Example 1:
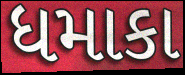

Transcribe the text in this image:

ધમાકા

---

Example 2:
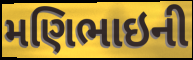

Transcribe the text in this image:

મણિભાઇની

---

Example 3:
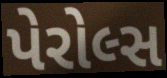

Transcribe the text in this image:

પેરોલ્સ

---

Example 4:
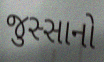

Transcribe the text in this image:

જુસ્સાનો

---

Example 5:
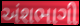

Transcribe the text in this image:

અંશભાગી